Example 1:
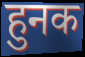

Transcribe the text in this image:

हुनक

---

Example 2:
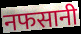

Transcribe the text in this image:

नफसानी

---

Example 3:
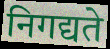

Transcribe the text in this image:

निगद्यते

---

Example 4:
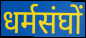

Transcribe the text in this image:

धर्मसंघों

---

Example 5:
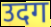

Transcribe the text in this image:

उदग